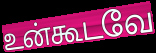
உன்கூடவே